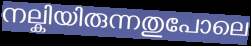
നല്കിയിരുന്നതുപോലെ